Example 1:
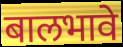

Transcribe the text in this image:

बालभावे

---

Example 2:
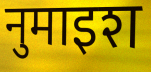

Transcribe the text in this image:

नुमाइश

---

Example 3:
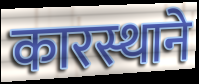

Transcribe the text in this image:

कारस्थाने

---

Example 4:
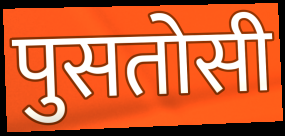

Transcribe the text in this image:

पुसतोसी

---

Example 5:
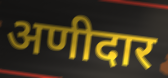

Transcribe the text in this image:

अणीदार